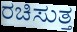
ರಚಿಸುತ್ತ